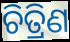
ଚିତ୍ରିଣ